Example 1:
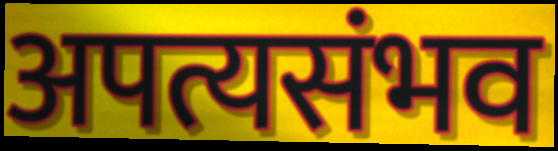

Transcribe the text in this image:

अपत्यसंभव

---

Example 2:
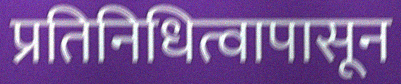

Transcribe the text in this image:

प्रतिनिधित्वापासून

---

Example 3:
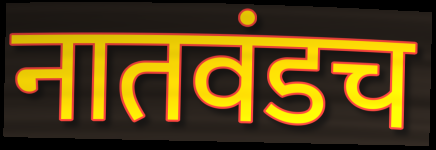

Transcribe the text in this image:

नातवंडच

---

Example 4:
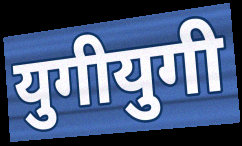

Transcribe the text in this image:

युगीयुगी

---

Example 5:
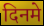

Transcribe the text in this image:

दिनमे